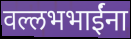
वल्लभभाईंना